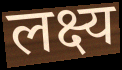
लक्ष्‍य